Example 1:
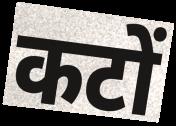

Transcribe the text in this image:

कटों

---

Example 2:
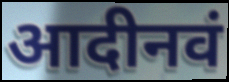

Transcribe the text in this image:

आदीनवं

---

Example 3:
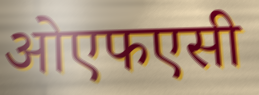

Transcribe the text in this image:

ओएफएसी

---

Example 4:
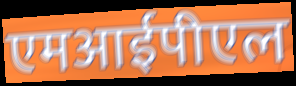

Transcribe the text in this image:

एमआईपीएल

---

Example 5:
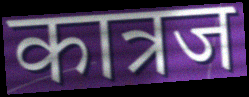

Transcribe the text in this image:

कात्रज